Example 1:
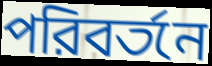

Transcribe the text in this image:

পরিবর্তনে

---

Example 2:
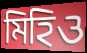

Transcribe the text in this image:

মিহিও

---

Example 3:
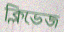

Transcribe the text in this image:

ক্লিভেজ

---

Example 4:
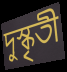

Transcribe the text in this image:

দুস্কৃতী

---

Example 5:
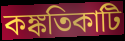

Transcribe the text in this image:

কঙ্কতিকাটি